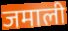
जमाली